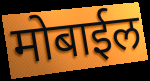
मोबाईल